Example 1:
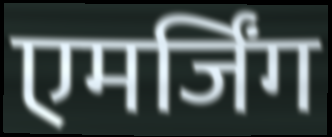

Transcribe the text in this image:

एमर्जिंग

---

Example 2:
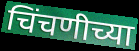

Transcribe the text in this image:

चिंचणीच्या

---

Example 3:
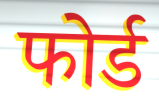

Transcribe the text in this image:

फोर्ड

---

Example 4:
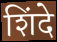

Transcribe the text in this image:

शिंदे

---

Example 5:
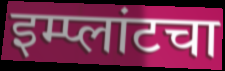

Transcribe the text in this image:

इम्प्लांटचा